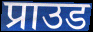
प्राउड